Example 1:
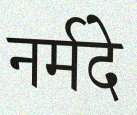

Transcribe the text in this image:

नर्मदे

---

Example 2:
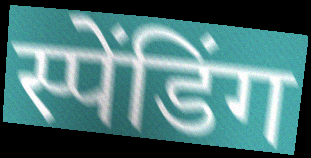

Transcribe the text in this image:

स्पेंडिंग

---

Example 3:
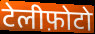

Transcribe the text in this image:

टेलीफ़ोटो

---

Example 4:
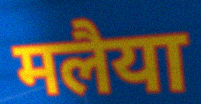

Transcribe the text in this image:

मलैया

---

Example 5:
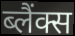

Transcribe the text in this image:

ब्लैंक्स